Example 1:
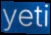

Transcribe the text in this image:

yeti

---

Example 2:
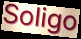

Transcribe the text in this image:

Soligo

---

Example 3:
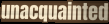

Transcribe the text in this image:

unacquainted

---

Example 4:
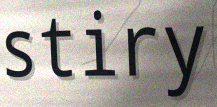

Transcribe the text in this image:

stiry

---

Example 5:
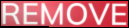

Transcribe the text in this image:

REMOVE